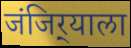
जंजिर्याला